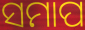
ସମାପ